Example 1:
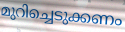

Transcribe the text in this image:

മുറിച്ചെടുക്കണം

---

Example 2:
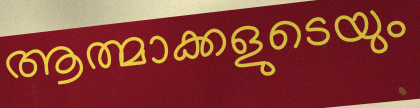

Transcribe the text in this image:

ആത്മാക്കളുടെയും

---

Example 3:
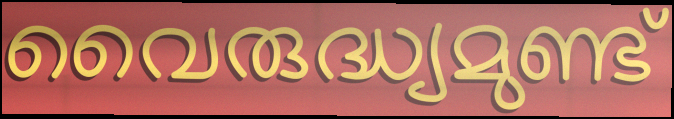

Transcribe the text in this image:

വൈരുദ്ധ്യമുണ്ട്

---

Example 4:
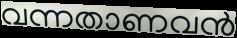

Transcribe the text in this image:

വന്നതാണവൻ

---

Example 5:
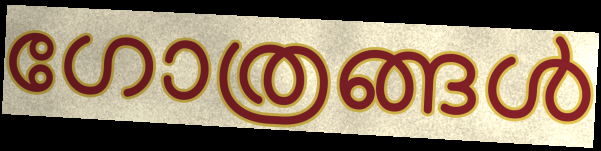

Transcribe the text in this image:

ഗോത്രങ്ങൾ